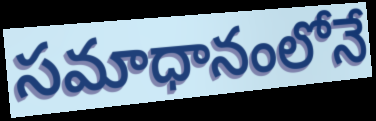
సమాధానంలోనే